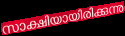
സാക്ഷിയായിരിക്കുന്നു